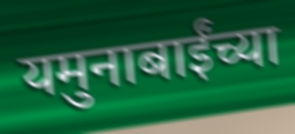
यमुनाबाईंच्या